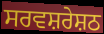
ਸਰਵਸ਼ਰੇਸ਼ਠ